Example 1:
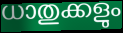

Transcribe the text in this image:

ധാതുക്കളും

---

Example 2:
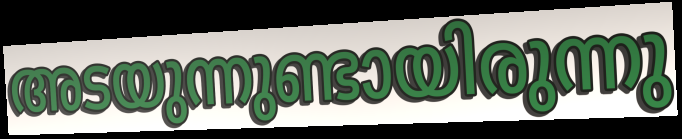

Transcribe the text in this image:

അടയുന്നുണ്ടായിരുന്നു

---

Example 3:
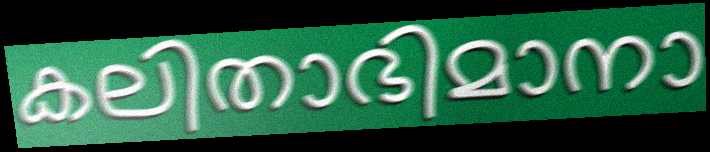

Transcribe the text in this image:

കലിതാഭിമാനാ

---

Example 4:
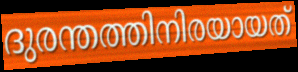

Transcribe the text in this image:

ദുരന്തത്തിനിരയായത്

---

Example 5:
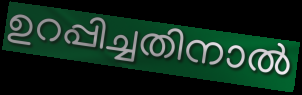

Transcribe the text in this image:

ഉറപ്പിച്ചതിനാൽ